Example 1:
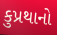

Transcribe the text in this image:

કુપ્રથાનો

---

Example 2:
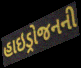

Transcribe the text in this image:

હાઇડ્રોજનની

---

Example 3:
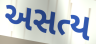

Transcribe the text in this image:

અસત્ય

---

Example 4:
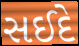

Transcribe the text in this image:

સઈદે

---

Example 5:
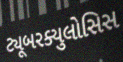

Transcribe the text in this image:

ટ્યૂબરક્યુલોસિસ